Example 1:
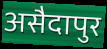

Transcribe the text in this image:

असैदापुर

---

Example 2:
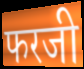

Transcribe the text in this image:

फरजी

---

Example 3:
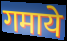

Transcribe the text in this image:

गमाये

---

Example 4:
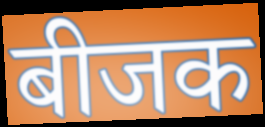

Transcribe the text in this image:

बीजक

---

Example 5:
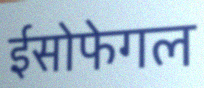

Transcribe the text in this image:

ईसोफेगल